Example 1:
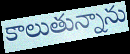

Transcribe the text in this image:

కాలుతున్నాను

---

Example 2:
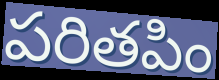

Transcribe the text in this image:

పరితపిం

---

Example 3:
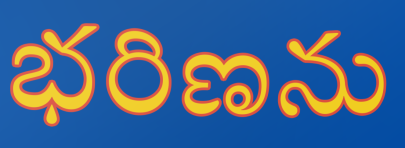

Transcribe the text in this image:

భరిణను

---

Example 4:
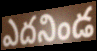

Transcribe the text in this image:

ఎదనిండ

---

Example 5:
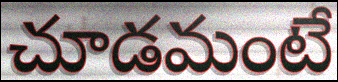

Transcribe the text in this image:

చూడమంటే